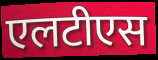
एलटीएस